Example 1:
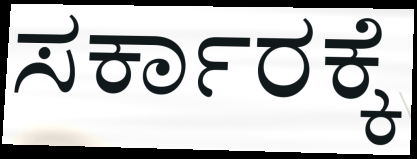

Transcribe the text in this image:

ಸರ್ಕಾರಕ್ಕೆ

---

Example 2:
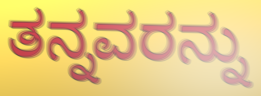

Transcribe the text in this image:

ತನ್ನವರನ್ನು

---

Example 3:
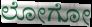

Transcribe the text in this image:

ಲೋಗೋ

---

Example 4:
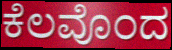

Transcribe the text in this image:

ಕೆಲವೊಂದ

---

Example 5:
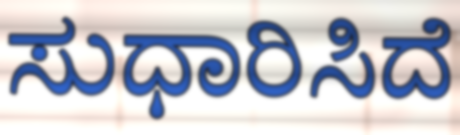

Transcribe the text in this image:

ಸುಧಾರಿಸಿದೆ